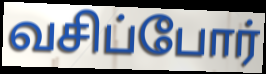
வசிப்போர்